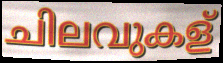
ചിലവുകള്